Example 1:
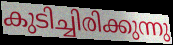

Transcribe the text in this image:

കുടിച്ചിരിക്കുന്നു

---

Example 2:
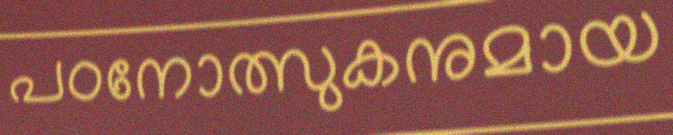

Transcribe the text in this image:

പഠനോത്സുകനുമായ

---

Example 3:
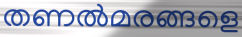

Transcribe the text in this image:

തണൽമരങ്ങളെ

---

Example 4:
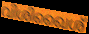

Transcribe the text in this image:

വിശിഖൈശ്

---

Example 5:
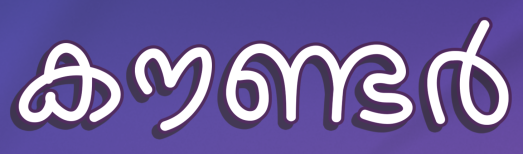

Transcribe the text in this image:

കൗണ്ടർ